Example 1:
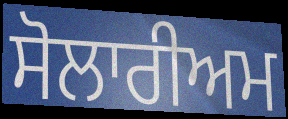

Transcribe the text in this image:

ਸੋਲਾਰੀਅਮ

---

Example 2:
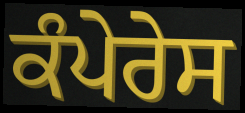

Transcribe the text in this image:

ਕੰਪੇਰੇਸ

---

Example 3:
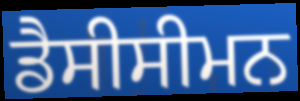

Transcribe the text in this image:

ਡੈਸੀਸੀਮਨ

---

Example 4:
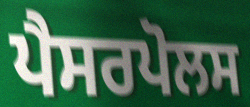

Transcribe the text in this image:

ਪੈਸਰਪੋਲਸ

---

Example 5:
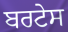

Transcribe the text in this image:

ਬਰਟੇਸ